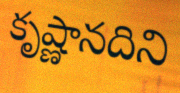
కృష్ణానదిని